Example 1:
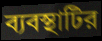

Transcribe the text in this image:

ব্যবস্থাটির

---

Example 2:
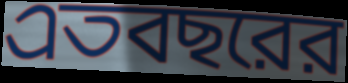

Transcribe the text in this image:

এতবছরের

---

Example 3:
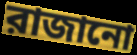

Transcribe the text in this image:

রাজানো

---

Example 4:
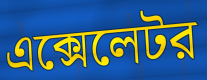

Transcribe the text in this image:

এক্সেলেটর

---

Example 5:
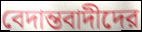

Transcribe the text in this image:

বেদান্তবাদীদের